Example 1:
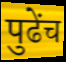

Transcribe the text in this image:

पुढेंच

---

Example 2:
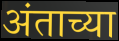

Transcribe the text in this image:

अंताच्या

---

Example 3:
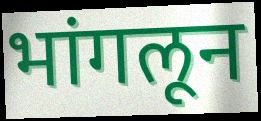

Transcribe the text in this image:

भांगलून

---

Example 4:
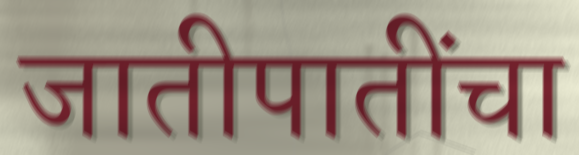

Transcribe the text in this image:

जातीपातींचा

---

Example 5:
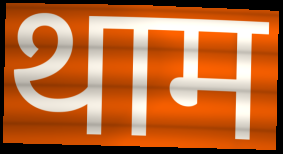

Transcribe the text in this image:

थाम